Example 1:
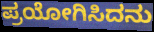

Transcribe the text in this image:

ಪ್ರಯೋಗಿಸಿದನು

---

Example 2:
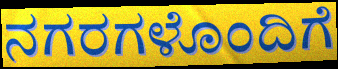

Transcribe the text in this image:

ನಗರಗಳೊಂದಿಗೆ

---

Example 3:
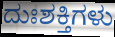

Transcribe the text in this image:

ದುಃಶಕ್ತಿಗಳು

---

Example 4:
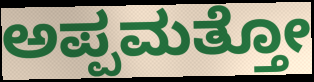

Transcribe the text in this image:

ಅಪ್ಪಮತ್ತೋ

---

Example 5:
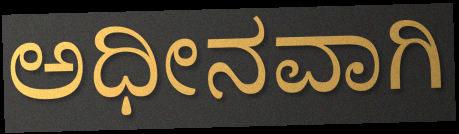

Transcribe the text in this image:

ಅಧೀನವಾಗಿ